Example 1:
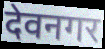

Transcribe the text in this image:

देवनगर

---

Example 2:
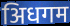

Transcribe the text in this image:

अिधगम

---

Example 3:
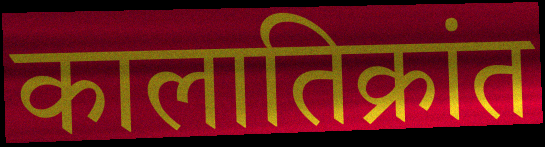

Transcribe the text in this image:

कालातिक्रांत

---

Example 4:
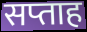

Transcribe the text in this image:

सप्‍ताह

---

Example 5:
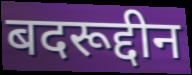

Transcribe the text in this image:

बदरूद्दीन